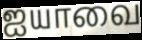
ஐயாவை